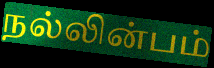
நல்லின்பம்